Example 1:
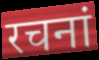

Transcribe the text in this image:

रचनां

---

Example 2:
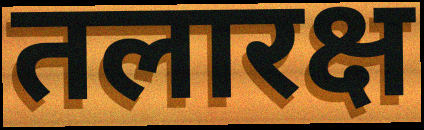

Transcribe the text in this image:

तलारक्ष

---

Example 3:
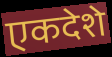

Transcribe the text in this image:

एकदेशे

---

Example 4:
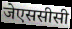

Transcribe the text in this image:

जेएससीसी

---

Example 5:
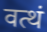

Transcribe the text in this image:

वत्थं